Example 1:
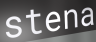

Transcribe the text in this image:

stena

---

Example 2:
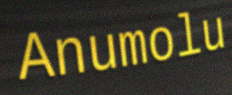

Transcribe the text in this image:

Anumolu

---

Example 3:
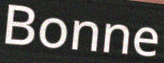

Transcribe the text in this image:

Bonne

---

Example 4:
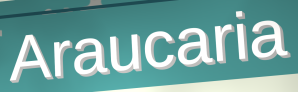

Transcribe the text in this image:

Araucaria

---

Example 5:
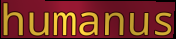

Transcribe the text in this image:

humanus